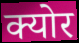
क्योर